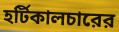
হর্টিকালচারের